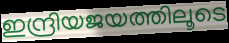
ഇന്ദ്രിയജയത്തിലൂടെ